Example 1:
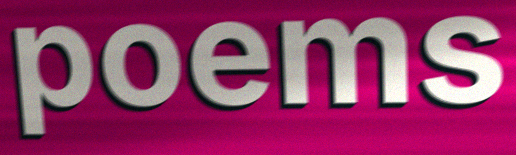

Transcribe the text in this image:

poems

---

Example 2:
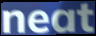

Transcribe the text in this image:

neat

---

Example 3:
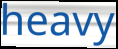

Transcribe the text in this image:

heavy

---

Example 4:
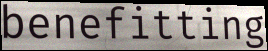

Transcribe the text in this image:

benefitting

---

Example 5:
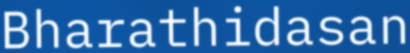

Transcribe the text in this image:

Bharathidasan